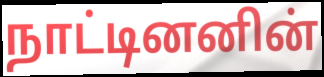
நாட்டினனின்